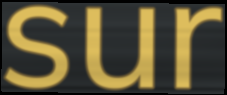
sur